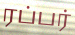
ரப்பர்